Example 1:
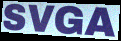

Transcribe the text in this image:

SVGA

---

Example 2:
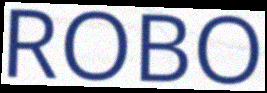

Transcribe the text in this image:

ROBO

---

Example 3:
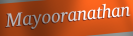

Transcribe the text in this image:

Mayooranathan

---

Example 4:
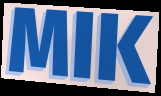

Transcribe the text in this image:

MIK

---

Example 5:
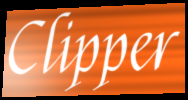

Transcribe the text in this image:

Clipper